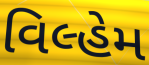
વિલ્હેમ